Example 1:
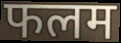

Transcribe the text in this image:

फलम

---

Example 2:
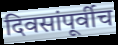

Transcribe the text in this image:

दिवसांपूर्वीच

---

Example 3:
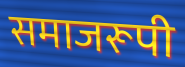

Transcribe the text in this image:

समाजरूपी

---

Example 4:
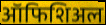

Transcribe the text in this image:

ऑफिशिअल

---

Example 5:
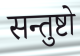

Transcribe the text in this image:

सन्तुष्टो